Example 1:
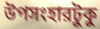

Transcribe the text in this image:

উপসংহারটুকু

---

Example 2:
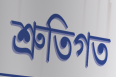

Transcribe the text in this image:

শ্রুতিগত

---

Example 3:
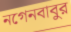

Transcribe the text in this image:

নগেনবাবুর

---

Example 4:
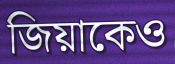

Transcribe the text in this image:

জিয়াকেও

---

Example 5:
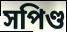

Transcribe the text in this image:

সপিণ্ড